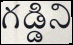
గడ్డిని